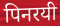
पिनरयी